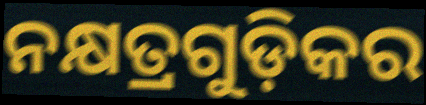
ନକ୍ଷତ୍ରଗୁଡ଼ିକର